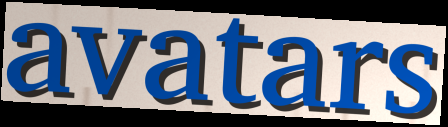
avatars